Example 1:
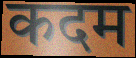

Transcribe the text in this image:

कदम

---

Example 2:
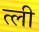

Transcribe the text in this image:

त्ली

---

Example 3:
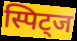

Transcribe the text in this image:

स्पिट्ज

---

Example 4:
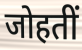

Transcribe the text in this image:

जोहतीं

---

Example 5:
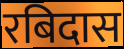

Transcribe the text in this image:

रबिदास